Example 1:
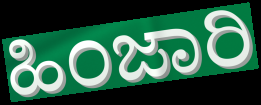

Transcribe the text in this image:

ಹಿಂಜಾರಿ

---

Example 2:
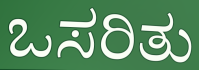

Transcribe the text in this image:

ಒಸರಿತು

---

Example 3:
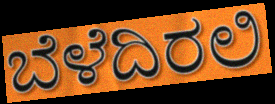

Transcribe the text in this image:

ಬೆಳೆದಿರಲಿ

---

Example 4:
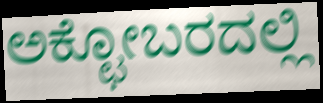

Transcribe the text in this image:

ಅಕ್ಟೋಬರದಲ್ಲಿ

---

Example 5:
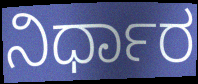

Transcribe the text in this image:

ನಿರ್ಧಾರ